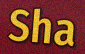
Sha